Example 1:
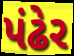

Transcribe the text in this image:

પંઢેર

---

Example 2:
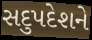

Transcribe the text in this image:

સદુપદેશને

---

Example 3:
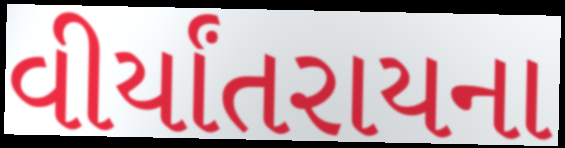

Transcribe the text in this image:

વીર્યાંતરાયના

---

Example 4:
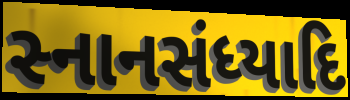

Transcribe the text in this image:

સ્નાનસંધ્યાદિ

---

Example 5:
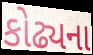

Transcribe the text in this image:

કોઢ્યના